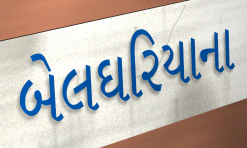
બેલઘરિયાના